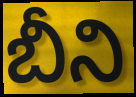
బీని